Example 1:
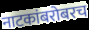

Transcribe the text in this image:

नाटकांबरोबरच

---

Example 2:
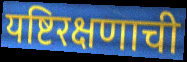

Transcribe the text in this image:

यष्टिरक्षणाची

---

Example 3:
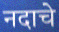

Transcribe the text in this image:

नदाचे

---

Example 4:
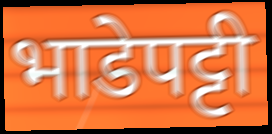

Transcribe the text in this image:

भाडेपट्टी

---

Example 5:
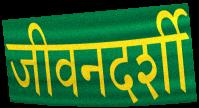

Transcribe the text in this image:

जीवनदर्शी